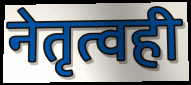
नेतृत्वही